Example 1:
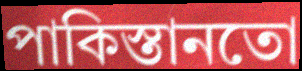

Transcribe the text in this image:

পাকিস্তানতো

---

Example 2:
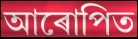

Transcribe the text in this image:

আৰোপিত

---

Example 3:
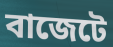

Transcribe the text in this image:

বাজেটে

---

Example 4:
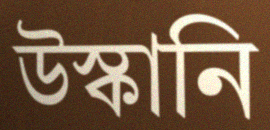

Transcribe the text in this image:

উস্কানি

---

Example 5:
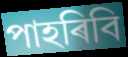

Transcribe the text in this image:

পাহৰিবি